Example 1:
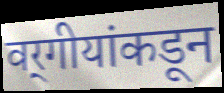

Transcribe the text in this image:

वर्गीयांकडून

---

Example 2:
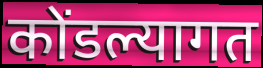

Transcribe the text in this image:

कोंडल्यागत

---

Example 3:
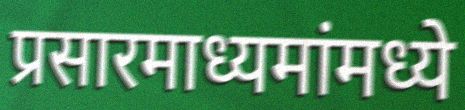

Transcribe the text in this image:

प्रसारमाध्यमांमध्ये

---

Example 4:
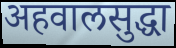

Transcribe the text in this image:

अहवालसुद्धा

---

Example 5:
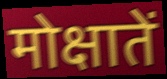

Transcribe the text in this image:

मोक्षातें